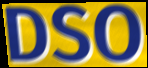
DSO